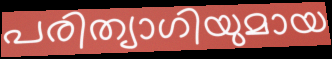
പരിത്യാഗിയുമായ